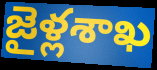
జైళ్లశాఖ